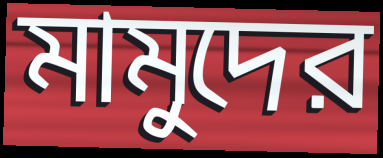
মামুদের